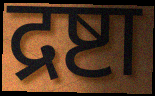
द्रष्टा